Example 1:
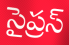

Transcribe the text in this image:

సైప్రస్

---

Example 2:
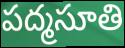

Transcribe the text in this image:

పద్మసూతి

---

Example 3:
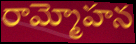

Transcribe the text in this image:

రామ్మోహన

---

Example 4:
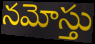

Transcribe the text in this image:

నమోస్తు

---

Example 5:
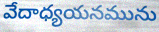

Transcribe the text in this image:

వేదాధ్యయనమును